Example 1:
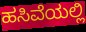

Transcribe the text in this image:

ಹಸಿವೆಯಲ್ಲಿ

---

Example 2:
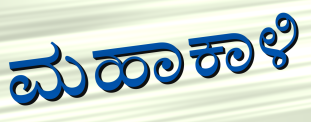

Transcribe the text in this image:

ಮಹಾಕಾಳಿ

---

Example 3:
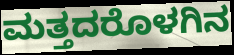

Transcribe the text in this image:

ಮತ್ತದರೊಳಗಿನ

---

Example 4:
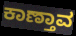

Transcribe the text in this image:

ಕಾಣ್ತಾವ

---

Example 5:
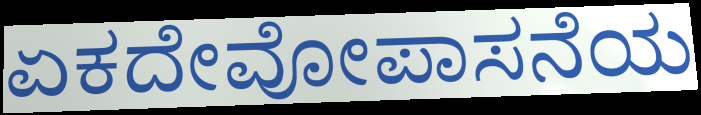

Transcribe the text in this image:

ಏಕದೇವೋಪಾಸನೆಯ